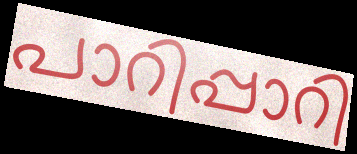
പാറിപ്പാറി